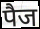
पैज